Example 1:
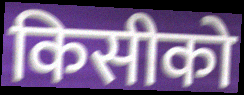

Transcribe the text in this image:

किसीको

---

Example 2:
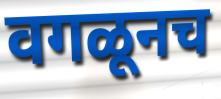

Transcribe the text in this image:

वगळूनच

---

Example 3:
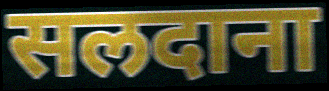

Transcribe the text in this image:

सलदाना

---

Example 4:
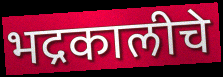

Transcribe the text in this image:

भद्रकालीचे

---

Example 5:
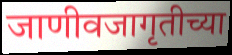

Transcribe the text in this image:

जाणीवजागृतीच्या